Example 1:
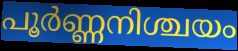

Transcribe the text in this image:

പൂർണ്ണനിശ്ചയം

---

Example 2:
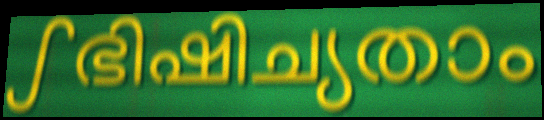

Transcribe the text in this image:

ഽഭിഷിച്യതാം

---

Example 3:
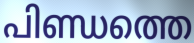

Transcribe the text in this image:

പിണ്ഡത്തെ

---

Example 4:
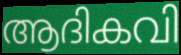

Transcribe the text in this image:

ആദികവി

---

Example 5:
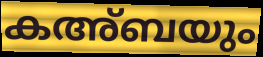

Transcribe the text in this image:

കഅ്ബയും